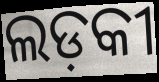
ଲଡ଼କୀ